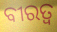
ବୀରତ୍ୱ